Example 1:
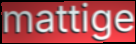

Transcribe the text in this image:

mattige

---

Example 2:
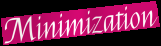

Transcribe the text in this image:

Minimization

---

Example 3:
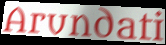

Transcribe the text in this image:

Arundati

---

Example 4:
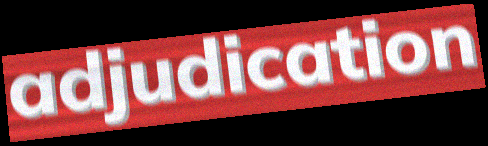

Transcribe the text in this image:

adjudication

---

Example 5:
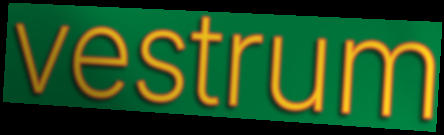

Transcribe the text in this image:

vestrum